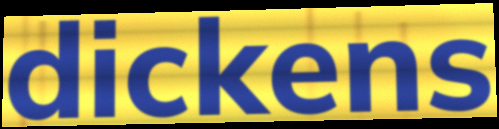
dickens